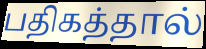
பதிகத்தால்